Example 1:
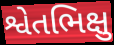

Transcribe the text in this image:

શ્વેતભિક્ષુ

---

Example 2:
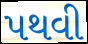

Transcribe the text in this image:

પથવી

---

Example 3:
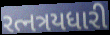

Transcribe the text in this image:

રત્નત્રયધારી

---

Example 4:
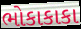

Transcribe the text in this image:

ભોકાકાકા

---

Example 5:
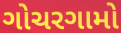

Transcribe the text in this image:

ગોચરગામો